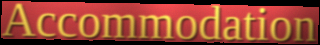
Accommodation